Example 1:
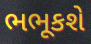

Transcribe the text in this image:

ભભૂકશે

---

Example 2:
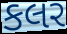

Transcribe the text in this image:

કલર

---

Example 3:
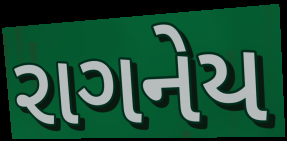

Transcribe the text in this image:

રાગનેય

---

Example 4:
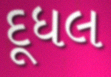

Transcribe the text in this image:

દૂધલ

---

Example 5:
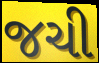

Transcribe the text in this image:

જચી